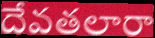
దేవతలారా